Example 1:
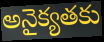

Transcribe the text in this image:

అనైక్యతకు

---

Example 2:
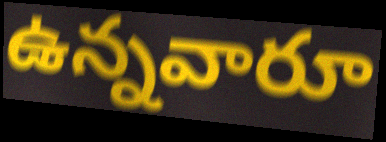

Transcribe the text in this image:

ఉన్నవారూ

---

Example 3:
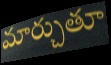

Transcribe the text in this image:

మార్చుతూ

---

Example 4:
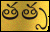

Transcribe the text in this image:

తత్స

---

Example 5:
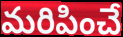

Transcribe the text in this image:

మరిపించే